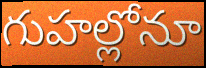
గుహల్లోనూ